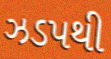
ઝડપથી